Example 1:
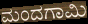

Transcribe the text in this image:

ಮಂದಗಾಮಿ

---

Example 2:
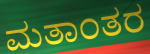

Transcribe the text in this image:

ಮತಾಂತರ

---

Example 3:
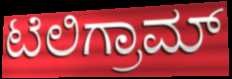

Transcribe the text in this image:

ಟೆಲಿಗ್ರಾಮ್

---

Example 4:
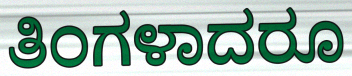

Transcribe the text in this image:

ತಿಂಗಳಾದರೂ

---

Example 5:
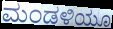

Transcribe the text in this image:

ಮಂಡಳಿಯೂ